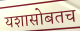
यशासोबतच